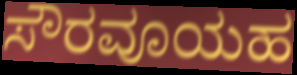
ಸೌರವೂಯಹ